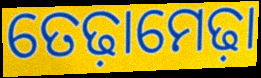
ତେଢ଼ାମେଢ଼ା